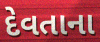
દેવતાના